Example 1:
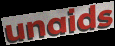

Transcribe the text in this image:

unaids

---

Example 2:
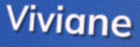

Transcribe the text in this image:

Viviane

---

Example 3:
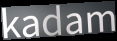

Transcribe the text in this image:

kadam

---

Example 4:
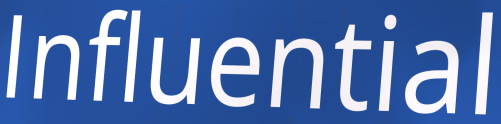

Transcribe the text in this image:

Influential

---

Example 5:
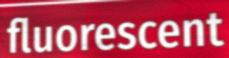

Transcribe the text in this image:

fluorescent